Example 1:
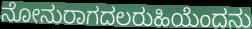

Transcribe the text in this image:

ನೋನುರಾಗದಲರುಹಿಯೆಂದನು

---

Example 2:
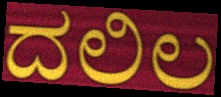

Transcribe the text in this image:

ದಲಿಲ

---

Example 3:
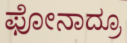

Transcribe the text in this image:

ಫೋನಾದ್ರೂ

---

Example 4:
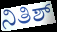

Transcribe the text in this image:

ನಿತಿಶ್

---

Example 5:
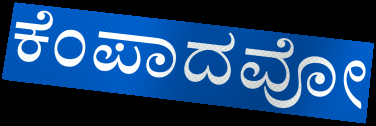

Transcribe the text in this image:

ಕೆಂಪಾದವೋ